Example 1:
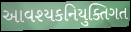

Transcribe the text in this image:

આવશ્યકનિયુક્તિગત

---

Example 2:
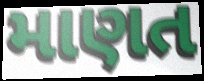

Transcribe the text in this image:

માણત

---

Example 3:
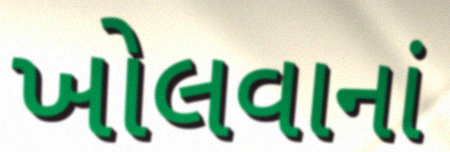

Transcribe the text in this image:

ખોલવાનાં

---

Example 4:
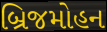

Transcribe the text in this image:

બ્રિજમોહન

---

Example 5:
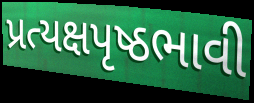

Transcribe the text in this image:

પ્રત્યક્ષપૃષ્ઠભાવી